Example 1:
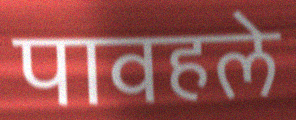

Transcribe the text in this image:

पावहले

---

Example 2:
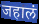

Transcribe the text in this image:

जहालं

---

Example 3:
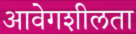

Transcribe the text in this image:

आवेगशीलता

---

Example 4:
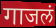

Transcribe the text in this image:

गाजलं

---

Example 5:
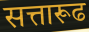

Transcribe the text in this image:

सत्तारूढ